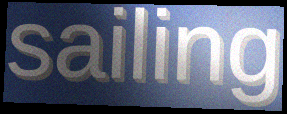
sailing